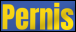
Pernis